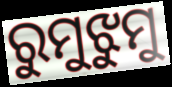
ରୁମୁଝୁମୁ